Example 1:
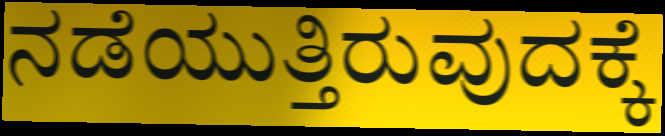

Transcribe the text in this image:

ನಡೆಯುತ್ತಿರುವುದಕ್ಕೆ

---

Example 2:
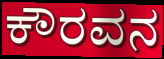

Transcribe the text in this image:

ಕೌರವನ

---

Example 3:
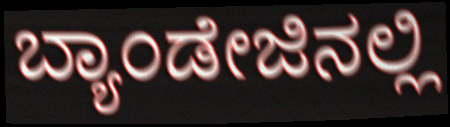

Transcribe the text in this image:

ಬ್ಯಾಂಡೇಜಿನಲ್ಲಿ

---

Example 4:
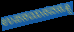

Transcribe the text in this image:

ಉಪನಯನವನ್ನೂ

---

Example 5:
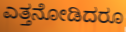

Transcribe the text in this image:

ಎತ್ತನೋಡಿದರೂ